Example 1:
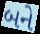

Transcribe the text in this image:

બને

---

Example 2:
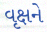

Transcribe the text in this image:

વૃક્ષને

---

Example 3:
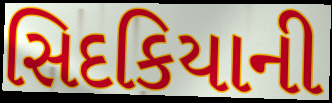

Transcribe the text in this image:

સિદકિયાની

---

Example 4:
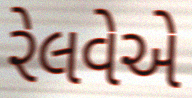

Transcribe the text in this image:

રેલવેએ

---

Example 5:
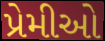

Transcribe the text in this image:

પ્રેમીઓ